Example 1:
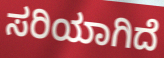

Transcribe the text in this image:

ಸರಿಯಾಗಿದೆ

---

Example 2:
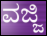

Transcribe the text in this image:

ವಜ್ಜಿ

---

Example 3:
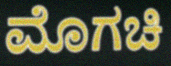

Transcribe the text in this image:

ಮೊಗಚಿ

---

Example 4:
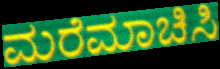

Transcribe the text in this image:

ಮರೆಮಾಚಿಸಿ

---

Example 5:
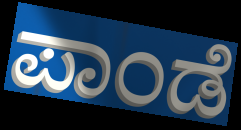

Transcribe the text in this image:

ಪಾಂಡೆ